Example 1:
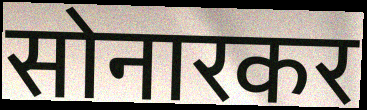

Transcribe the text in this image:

सोनारकर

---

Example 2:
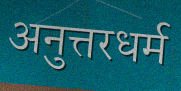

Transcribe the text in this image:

अनुत्तरधर्म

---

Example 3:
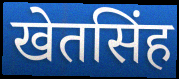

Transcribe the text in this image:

खेतसिंह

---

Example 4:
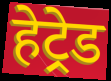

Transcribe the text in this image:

हेट्रेड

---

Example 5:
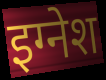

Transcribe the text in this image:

इग्नेश